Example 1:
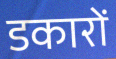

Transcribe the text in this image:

डकारों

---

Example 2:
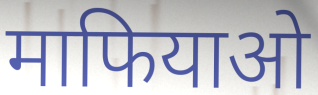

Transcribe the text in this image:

माफियाओ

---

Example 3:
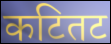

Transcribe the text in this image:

कटितट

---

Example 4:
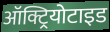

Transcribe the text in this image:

ऑक्ट्रियोटाइड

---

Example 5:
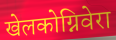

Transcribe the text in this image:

खेलकोग्निवेरा